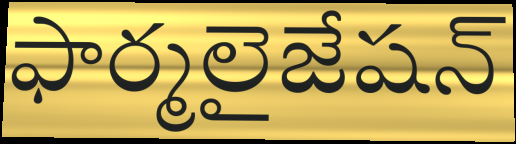
ఫార్మలైజేషన్